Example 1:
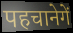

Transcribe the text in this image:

पहचानेगें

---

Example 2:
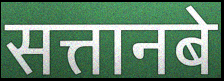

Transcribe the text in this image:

सत्तानबे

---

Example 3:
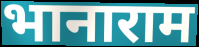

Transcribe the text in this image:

भानाराम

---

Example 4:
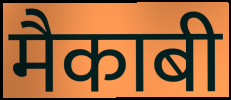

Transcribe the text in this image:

मैकाबी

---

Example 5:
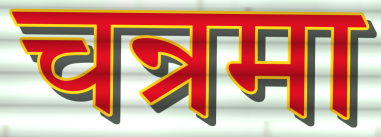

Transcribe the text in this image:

चन्रमा